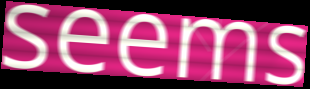
seems